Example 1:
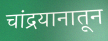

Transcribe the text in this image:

चांद्रयानातून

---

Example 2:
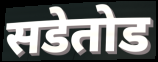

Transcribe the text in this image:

सडेतोड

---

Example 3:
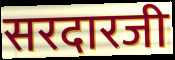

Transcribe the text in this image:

सरदारजी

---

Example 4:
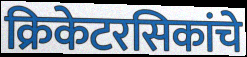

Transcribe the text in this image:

क्रिकेटरसिकांचे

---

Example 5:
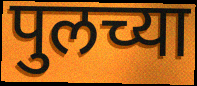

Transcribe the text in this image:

पुलच्या